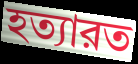
হত্যারত